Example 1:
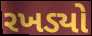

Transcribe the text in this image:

રખડ્યો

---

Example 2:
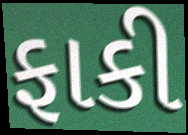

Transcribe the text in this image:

ફાકી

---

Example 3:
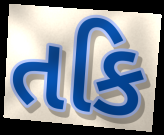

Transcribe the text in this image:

તકિ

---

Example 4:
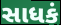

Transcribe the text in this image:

સાધકં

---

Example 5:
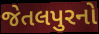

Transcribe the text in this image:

જેતલપુરનો